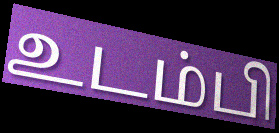
உடம்பி